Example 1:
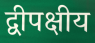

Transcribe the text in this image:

द्वीपक्षीय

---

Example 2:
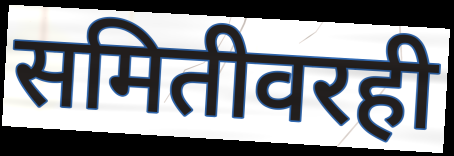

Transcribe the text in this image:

समितीवरही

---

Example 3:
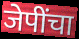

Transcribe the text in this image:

जेपींचा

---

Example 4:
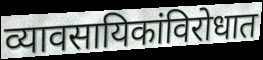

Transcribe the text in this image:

व्यावसायिकांविरोधात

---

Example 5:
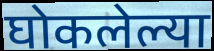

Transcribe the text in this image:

घोकलेल्या